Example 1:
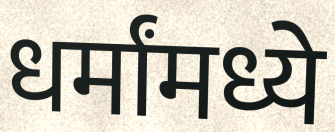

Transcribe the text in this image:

धर्मांमध्ये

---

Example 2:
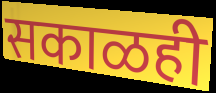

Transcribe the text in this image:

सकाळही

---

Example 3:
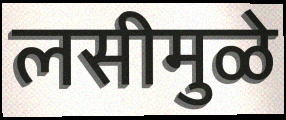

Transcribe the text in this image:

लसीमुळे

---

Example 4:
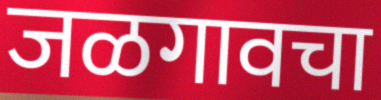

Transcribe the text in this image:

जळगावचा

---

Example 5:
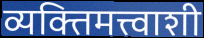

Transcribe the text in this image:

व्यक्तिमत्त्वाशी